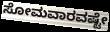
ಸೋಮವಾರವಷ್ಟೇ